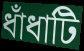
ধাঁধাটি